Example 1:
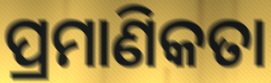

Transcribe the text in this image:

ପ୍ରମାଣିକତା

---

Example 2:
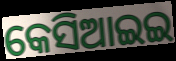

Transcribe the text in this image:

କେସିଆଇଇ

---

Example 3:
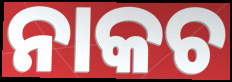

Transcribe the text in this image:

ନାକଚ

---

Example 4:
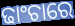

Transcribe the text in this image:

ଢାଂଚାରେ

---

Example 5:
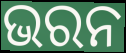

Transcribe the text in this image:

ଭରନ